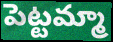
పెట్టమ్మా